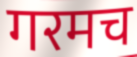
गरमच